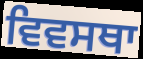
ਵਿਵਸਥਾ